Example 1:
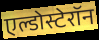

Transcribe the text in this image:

एल्डोस्टेरॉन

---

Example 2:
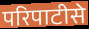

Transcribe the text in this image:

परिपाटीसे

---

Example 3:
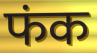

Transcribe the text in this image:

फंक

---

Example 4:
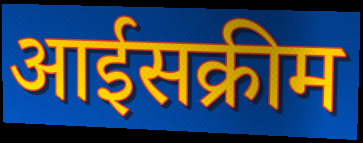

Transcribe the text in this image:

आईसक्रीम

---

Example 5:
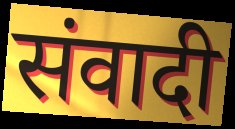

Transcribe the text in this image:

संवादी